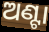
ଅଣ୍ଟା